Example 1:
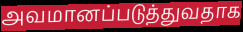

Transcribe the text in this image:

அவமானப்படுத்துவதாக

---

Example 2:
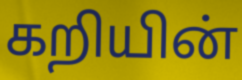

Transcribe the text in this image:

கறியின்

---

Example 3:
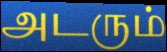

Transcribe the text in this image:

அடரும்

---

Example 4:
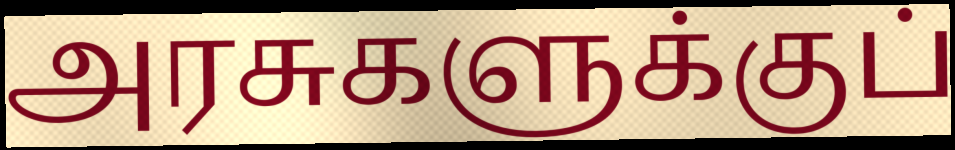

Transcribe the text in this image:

அரசுகளுக்குப்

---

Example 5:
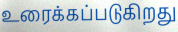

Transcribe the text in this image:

உரைக்கப்படுகிறது